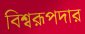
বিশ্বরূপদার